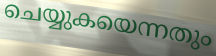
ചെയ്യുകയെന്നതും